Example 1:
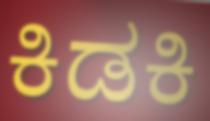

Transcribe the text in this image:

ಕಿಡಕಿ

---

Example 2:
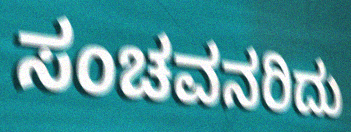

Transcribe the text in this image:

ಸಂಚವನರಿದು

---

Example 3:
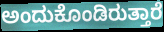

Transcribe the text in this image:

ಅಂದುಕೊಂಡಿರುತ್ತಾರೆ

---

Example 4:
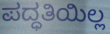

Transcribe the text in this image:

ಪದ್ಧತಿಯಿಲ್ಲ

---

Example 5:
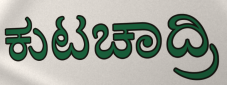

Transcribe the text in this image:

ಕುಟಚಾದ್ರಿ